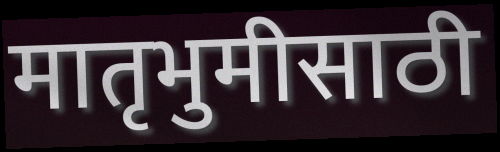
मातृभुमीसाठी